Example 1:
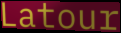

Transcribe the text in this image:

Latour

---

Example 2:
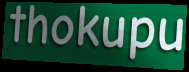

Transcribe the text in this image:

thokupu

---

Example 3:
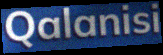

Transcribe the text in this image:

Qalanisi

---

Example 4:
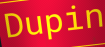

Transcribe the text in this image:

Dupin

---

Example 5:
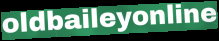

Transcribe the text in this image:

oldbaileyonline